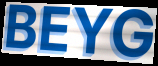
BEYG